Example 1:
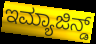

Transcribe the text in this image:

ಇಮ್ಯಾಜಿನ್ಡ್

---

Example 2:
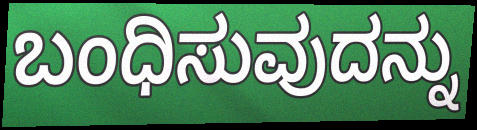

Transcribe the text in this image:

ಬಂಧಿಸುವುದನ್ನು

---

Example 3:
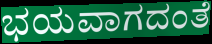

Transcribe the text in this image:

ಭಯವಾಗದಂತೆ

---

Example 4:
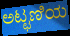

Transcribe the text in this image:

ಅಟ್ಟಣಿಯ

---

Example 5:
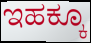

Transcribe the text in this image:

ಇಹಕ್ಕೂ